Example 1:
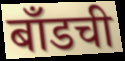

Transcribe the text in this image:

बाँडची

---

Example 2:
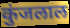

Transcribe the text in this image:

कुंजलाल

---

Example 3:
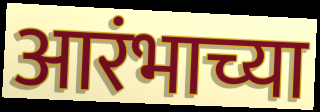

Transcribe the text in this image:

आरंभाच्या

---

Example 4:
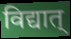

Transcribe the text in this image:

विद्यात्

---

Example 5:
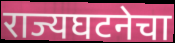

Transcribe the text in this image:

राज्यघटनेचा